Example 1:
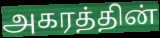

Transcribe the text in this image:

அகரத்தின்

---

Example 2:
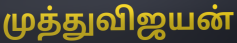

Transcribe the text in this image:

முத்துவிஜயன்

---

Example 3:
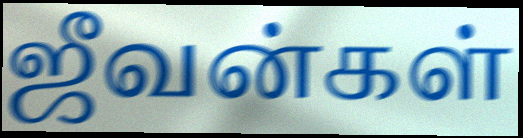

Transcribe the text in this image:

ஜீவன்கள்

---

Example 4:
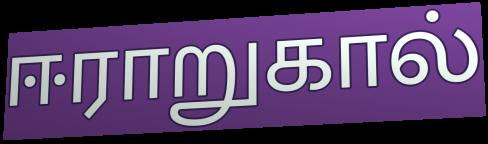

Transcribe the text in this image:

ஈராறுகால்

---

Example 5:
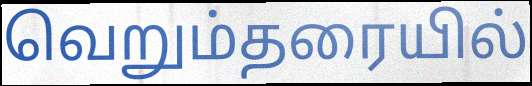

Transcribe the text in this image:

வெறும்தரையில்